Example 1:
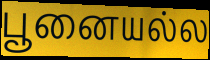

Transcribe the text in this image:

பூனையல்ல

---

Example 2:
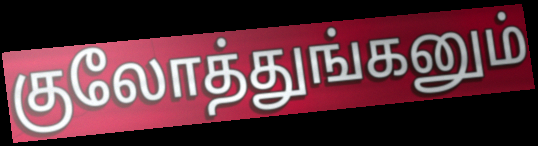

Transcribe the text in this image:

குலோத்துங்கனும்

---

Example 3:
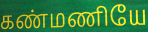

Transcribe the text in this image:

கண்மணியே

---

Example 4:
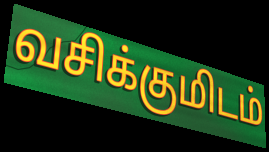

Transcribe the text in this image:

வசிக்குமிடம்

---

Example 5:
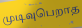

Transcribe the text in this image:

முடிவுபெறாத